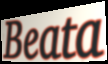
Beata